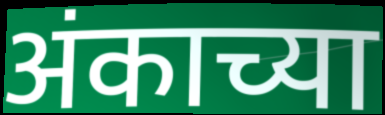
अंकाच्या